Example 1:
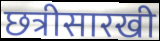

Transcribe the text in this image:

छत्रीसारखी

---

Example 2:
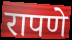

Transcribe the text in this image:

रापणे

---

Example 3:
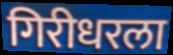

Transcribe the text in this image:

गिरीधरला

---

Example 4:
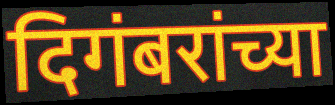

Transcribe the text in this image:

दिगंबरांच्या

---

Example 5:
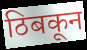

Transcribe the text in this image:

ठिबकून